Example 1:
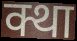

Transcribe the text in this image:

क्था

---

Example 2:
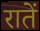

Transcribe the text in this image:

रातें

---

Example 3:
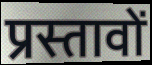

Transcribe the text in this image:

प्रस्तावों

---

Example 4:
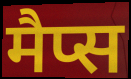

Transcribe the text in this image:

मैप्स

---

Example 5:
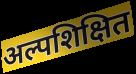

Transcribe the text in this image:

अल्पशिक्षित